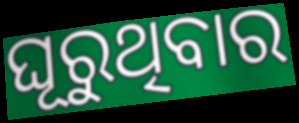
ଘୂରୁଥିବାର